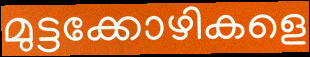
മുട്ടക്കോഴികളെ